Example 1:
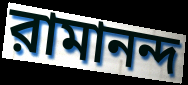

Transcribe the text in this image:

রামানন্দ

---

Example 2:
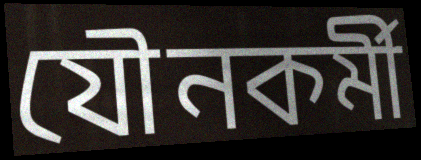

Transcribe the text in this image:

যৌনকর্মী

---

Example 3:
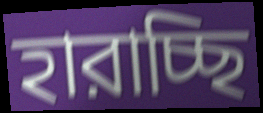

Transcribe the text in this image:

হারাচ্ছি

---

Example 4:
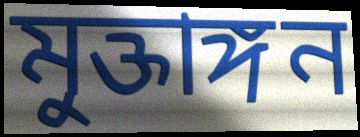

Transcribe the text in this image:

মুক্তাঙ্গন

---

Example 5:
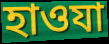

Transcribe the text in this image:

হাওযা